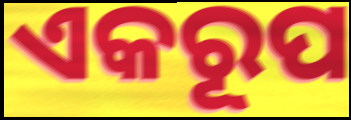
ଏକରୂପ